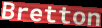
Bretton